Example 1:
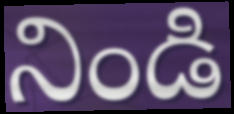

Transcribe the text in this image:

నిండి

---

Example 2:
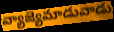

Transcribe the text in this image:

వ్యాజ్యెమాడువాడు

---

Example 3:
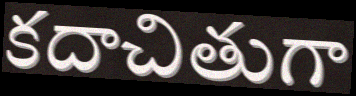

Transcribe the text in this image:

కదాచితుగా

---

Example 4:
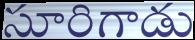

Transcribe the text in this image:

సూరిగాడు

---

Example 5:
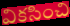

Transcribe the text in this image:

వికసించి